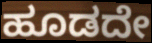
ಹೂಡದೇ